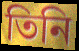
তিনি